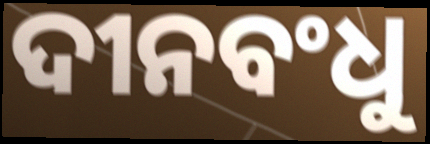
ଦୀନବଂଧୁ